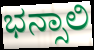
ಭನ್ಸಾಲಿ